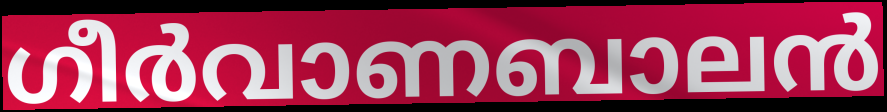
ഗീർവാണബാലൻ